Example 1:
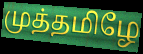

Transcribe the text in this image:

முத்தமிழே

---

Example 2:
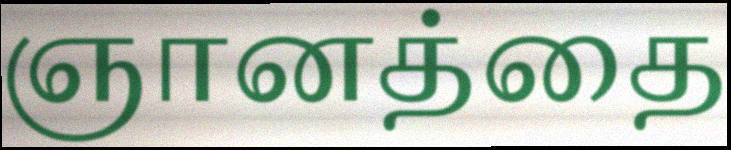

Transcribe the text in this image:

ஞானத்தை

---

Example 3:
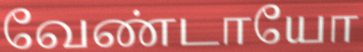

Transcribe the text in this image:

வேண்டாயோ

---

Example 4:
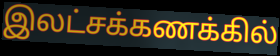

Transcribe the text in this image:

இலட்சக்கணக்கில்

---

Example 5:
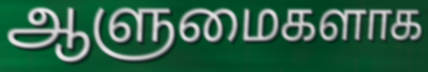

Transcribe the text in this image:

ஆளுமைகளாக